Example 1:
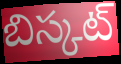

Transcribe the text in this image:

బిస్కట్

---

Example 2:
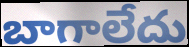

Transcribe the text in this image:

బాగాలేదు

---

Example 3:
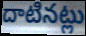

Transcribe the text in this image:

దాటినట్లు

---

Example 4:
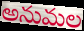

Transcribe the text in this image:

అనుమల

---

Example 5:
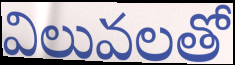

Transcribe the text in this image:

విలువలతో